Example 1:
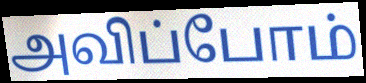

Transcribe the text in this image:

அவிப்போம்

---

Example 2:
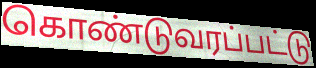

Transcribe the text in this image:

கொண்டுவரப்பட்டு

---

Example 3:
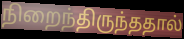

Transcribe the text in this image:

நிறைந்திருந்ததால்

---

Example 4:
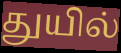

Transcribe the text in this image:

துயில்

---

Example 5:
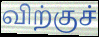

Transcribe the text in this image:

விற்குச்